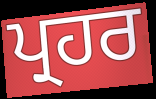
ਪ੍ਰਹਰ